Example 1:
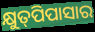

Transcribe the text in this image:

କ୍ଷୁତ୍‌ପିପାସାର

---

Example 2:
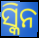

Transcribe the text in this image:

ସ୍କିନ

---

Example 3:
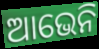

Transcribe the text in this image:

ଆଭେନି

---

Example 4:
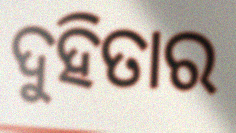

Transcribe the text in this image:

ଦୁହିତାର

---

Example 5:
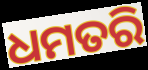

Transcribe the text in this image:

ଧମତରି